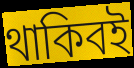
থাকিবই